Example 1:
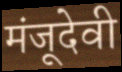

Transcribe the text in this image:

मंजूदेवी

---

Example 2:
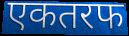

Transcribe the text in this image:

एकतरफ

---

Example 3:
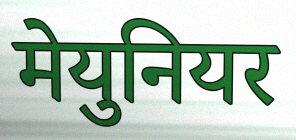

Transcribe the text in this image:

मेयुनियर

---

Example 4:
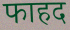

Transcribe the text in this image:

फाहद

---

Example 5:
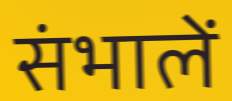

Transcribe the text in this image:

संभालें